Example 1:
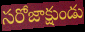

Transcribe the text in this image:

సరోజాక్షుండు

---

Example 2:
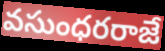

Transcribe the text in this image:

వసుంధరరాజే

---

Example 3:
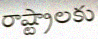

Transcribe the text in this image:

రాష్ట్రాలకు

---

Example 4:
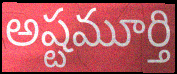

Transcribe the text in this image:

అష్టమూర్తి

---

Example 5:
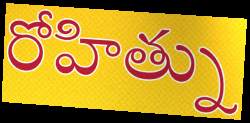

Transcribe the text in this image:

రోహిత్ను